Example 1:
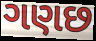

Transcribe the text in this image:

ગણછ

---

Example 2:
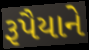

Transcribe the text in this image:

રૂપૈયાને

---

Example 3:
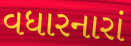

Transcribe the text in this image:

વધારનારાં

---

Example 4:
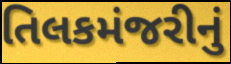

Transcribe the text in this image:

તિલકમંજરીનું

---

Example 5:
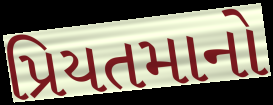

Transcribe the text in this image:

પ્રિયતમાનો